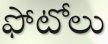
ఫోటోలు